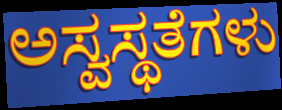
ಅಸ್ವಸ್ಥತೆಗಳು